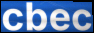
cbec